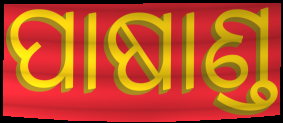
ପାଷାଣ୍ଡ